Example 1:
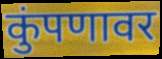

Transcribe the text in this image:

कुंपणावर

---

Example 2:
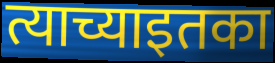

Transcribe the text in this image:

त्याच्याइतका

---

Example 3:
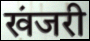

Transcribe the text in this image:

खंजरी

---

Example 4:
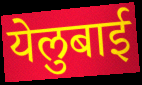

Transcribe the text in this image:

येलुबाई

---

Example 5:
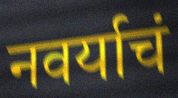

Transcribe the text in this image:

नवर्याचं